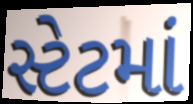
સ્ટેટમાં